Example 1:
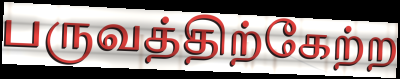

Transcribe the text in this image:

பருவத்திற்கேற்ற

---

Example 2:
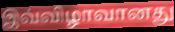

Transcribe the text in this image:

இவ்விழாவானது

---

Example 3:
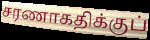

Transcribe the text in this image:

சரணாகதிக்குப்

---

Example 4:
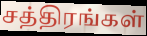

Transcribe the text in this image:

சத்திரங்கள்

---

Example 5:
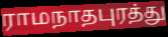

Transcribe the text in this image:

ராமநாதபுரத்து